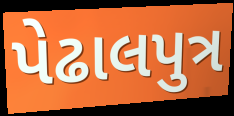
પેઢાલપુત્ર